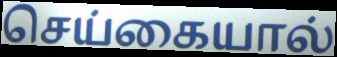
செய்கையால்